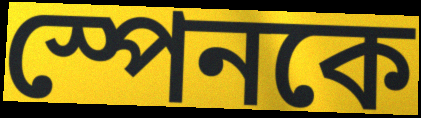
স্পেনকে